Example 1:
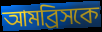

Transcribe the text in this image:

আমব্রিসকে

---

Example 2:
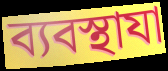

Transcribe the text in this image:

ব্যবস্থাযা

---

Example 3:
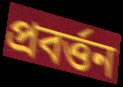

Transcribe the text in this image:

প্রবর্ত্তন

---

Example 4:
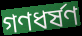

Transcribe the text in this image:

গণধর্ষণ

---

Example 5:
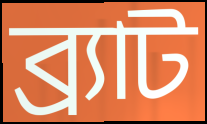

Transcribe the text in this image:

ব্র্যাট